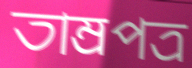
তাম্রপত্র